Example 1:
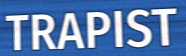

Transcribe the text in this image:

TRAPIST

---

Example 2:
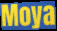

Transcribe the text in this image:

Moya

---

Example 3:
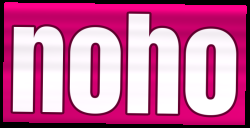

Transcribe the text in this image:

noho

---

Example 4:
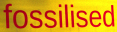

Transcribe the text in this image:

fossilised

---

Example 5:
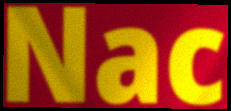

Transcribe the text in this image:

Nac